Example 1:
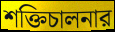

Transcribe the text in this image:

শক্তিচালনার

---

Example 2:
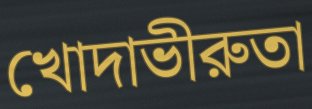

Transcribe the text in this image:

খোদাভীরুতা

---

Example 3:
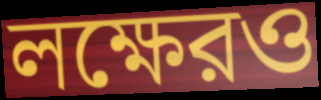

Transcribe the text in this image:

লক্ষেরও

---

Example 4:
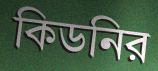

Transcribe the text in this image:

কিডনির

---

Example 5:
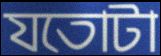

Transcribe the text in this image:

যতোটা